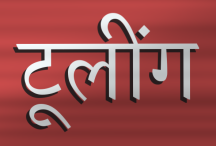
टूलींग